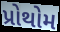
પ્રોથોમ